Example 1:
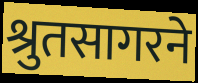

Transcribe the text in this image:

श्रुतसागरने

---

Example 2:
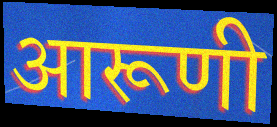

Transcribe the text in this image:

आरूणी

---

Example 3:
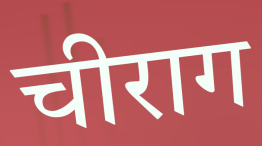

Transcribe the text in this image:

चीराग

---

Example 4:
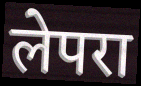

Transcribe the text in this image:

लेपरा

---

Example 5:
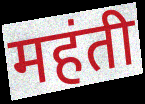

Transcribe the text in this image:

महंती